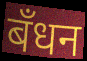
बँधन